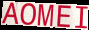
AOMEI